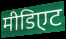
मीडिएट